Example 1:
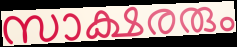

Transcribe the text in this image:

സാക്ഷരരും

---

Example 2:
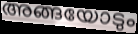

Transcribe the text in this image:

അങ്ങയോടും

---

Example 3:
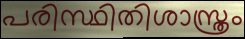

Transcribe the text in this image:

പരിസ്ഥിതിശാസ്ത്രം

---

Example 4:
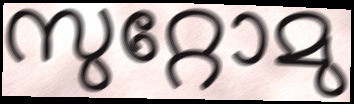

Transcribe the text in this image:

സുറ്റോമു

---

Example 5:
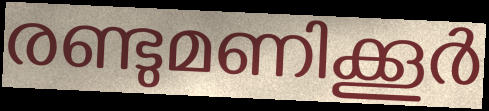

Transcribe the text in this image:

രണ്ടുമണിക്കൂർ